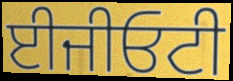
ਈਜੀਓਟੀ